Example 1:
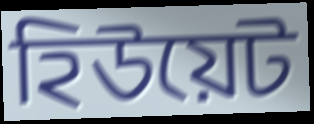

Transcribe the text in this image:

হিউয়েট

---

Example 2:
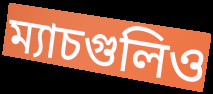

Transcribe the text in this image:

ম্যাচগুলিও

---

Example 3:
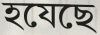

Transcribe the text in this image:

হযেছে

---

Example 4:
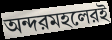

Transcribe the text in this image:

অন্দরমহলেরই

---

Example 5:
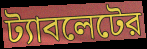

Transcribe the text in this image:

ট্যাবলেটের